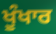
ਖੂੰਖਾਰ